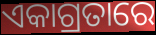
ଏକାଗ୍ରତାରେ